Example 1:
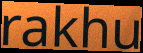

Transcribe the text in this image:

rakhu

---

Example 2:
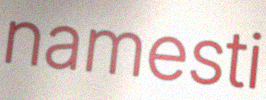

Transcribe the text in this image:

namesti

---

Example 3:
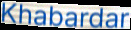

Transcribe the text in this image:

Khabardar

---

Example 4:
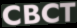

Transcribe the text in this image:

CBCT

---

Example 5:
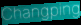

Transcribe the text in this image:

Changping